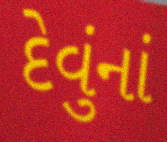
દેવુંનાં